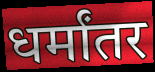
धर्मांतर